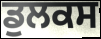
ਡੁਲਕਸ